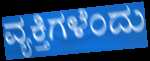
ವ್ಯಕ್ತಿಗಳೆಂದು